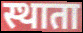
स्थाता